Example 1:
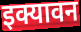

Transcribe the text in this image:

इक्यावन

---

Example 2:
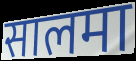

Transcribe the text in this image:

सालमा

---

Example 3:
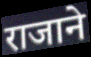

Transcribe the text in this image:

राजाने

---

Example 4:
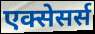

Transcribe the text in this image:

एक्सेसर्स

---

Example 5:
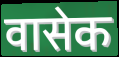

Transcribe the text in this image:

वासेक